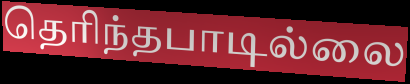
தெரிந்தபாடில்லை